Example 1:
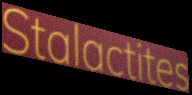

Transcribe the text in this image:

Stalactites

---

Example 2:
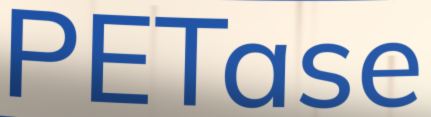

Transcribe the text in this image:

PETase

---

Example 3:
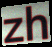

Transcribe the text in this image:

zh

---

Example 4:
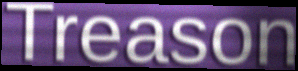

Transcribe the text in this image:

Treason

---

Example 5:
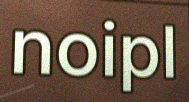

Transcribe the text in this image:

noipl